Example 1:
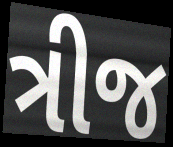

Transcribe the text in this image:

ત્રીજ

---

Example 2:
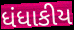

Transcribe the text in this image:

ધંધાકીય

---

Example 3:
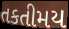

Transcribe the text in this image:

તકતીમય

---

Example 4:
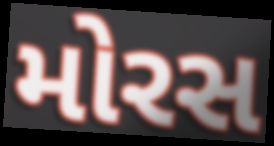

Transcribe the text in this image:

મોરસ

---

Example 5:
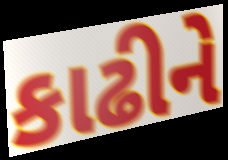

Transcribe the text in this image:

કાઢીને